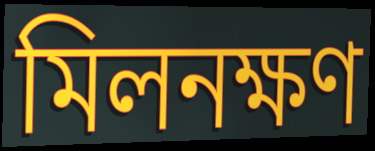
মিলনক্ষণ